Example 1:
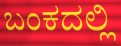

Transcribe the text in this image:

ಬಂಕದಲ್ಲಿ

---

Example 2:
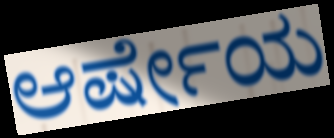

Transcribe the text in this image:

ಆರ್ಷೇಯ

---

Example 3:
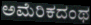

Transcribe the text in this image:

ಅಮೆರಿಕದಂಥ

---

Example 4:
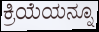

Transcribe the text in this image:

ಕ್ರಿಯೆಯನ್ನೂ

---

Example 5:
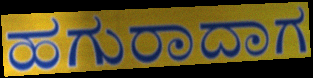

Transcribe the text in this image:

ಹಗುರಾದಾಗ